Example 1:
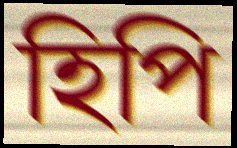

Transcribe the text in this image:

হিপি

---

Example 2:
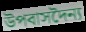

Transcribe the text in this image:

উপবাসদৈন্য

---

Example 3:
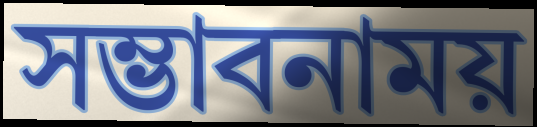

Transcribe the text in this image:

সম্ভাবনাময়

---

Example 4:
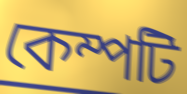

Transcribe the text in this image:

কেম্পটি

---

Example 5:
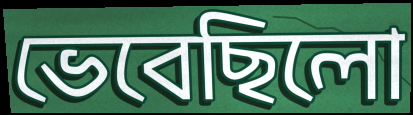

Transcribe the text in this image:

ভেবেছিলো